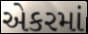
એકરમાં